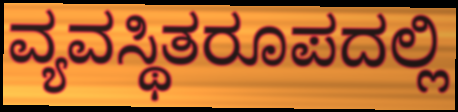
ವ್ಯವಸ್ಥಿತರೂಪದಲ್ಲಿ